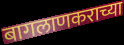
बागलाणकराच्या